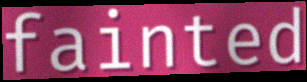
fainted